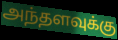
அந்தளவுக்கு